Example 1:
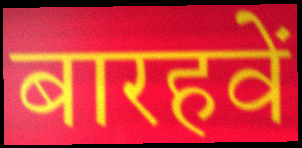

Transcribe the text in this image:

बारहवें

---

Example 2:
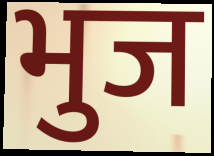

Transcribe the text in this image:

भुज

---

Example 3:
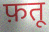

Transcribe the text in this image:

फ़तू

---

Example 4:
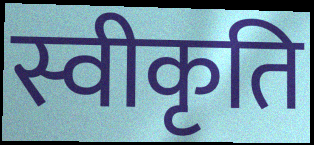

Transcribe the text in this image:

स्‍वीकृति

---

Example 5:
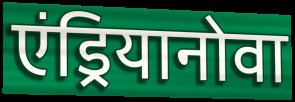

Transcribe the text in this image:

एंड्रियानोवा